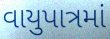
વાયુપાત્રમાં